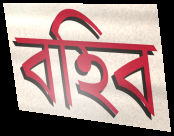
বহিব